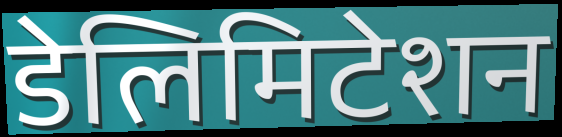
डेलिमिटेशन